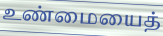
உண்மையைத்